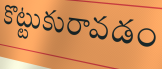
కొట్టుకురావడం